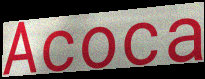
Acoca